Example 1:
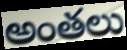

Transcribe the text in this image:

అంతలు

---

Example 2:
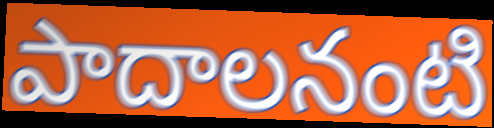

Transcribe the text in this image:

పాదాలనంటి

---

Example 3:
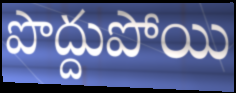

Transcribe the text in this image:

పొద్దుపోయి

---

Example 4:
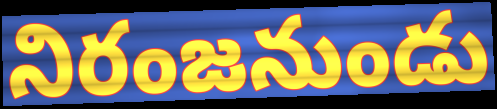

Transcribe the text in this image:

నిరంజనుండు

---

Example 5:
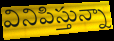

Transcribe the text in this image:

వినిపిస్తున్నా